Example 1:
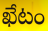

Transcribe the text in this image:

ఖేటం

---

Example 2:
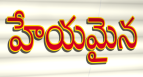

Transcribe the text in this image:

హేయమైన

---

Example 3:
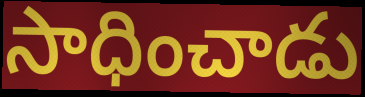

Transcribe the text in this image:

సాధించాడు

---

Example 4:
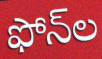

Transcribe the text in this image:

ఫోన్‌ల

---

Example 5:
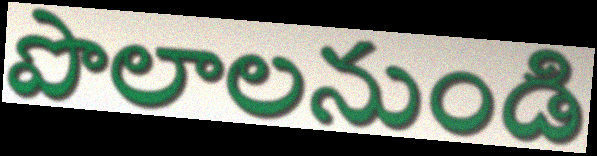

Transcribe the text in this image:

పొలాలనుండి